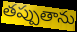
తప్పుతాను